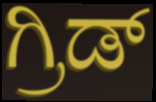
ಗ್ರಿಡ್